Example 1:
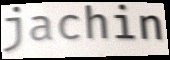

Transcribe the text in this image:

jachin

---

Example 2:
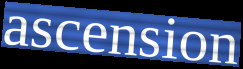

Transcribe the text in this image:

ascension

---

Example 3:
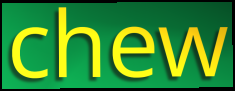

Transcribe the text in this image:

chew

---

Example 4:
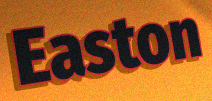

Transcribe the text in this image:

Easton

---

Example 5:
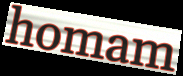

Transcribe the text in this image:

homam